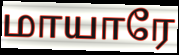
மாயாரே